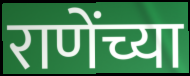
राणेंच्या